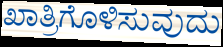
ಖಾತ್ರಿಗೊಳಿಸುವುದು